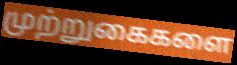
முற்றுகைகளை